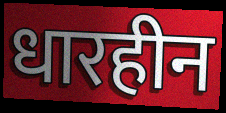
धारहीन